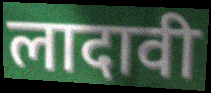
लादावी